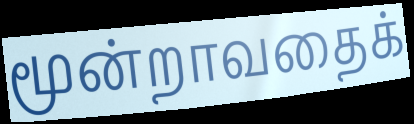
மூன்றாவதைக்